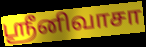
ஸ்ரீனிவாசா